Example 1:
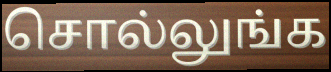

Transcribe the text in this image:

சொல்லுங்க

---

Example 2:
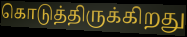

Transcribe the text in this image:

கொடுத்திருக்கிறது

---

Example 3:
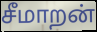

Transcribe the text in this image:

சீமாறன்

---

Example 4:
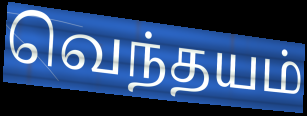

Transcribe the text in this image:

வெந்தயம்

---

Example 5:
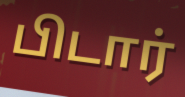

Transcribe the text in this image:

பிடார்